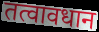
तत्वावधान